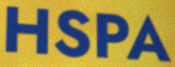
HSPA